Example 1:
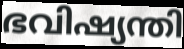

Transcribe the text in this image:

ഭവിഷ്യന്തി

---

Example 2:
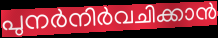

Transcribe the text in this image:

പുനർനിർവചിക്കാൻ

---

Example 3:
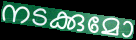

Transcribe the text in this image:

നടക്കുമോ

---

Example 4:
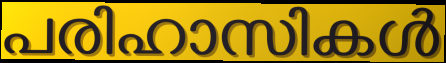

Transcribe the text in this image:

പരിഹാസികൾ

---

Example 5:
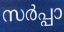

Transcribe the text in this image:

സർപ്പാ